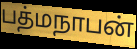
பத்மநாபன்